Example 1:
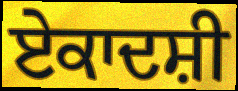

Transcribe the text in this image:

ਏਕਾਦਸ਼ੀ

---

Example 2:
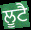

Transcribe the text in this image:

ਲੂਟੈ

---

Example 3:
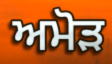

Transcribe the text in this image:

ਅਮੋੜ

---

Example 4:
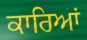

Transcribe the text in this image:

ਕਾਰਿਆਂ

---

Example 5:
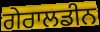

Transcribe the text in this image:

ਗੇਰਾਲਡੀਨ